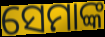
ସେମାଙ୍କ